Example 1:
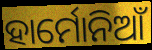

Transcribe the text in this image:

ହାର୍ମୋନିଆଁ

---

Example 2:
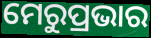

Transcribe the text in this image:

ମେରୁପ୍ରଭାର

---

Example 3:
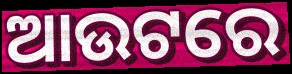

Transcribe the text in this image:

ଆଉଟରେ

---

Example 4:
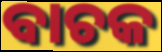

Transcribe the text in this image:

ବାଚକ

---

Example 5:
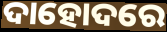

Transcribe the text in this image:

ଦାହୋଦରେ